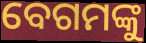
ବେଗମଙ୍କୁ